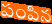
పంపిన